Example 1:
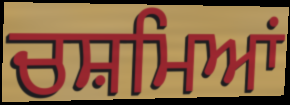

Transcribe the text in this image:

ਚਸ਼ਮਿਆਂ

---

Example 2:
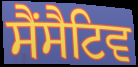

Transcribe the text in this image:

ਸੈਂਸੈਟਿਵ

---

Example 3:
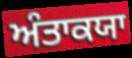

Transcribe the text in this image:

ਅੰਤਾਕਯਾ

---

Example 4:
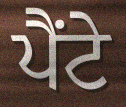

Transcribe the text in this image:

ਪੈਂਟੇ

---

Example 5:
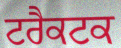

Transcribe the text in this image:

ਟਰੈਕਟਕ